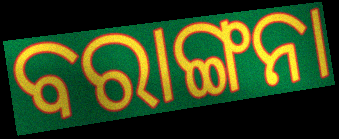
ବରାଙ୍ଗନା